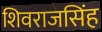
शिवराजसिंह